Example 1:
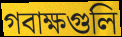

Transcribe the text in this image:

গবাক্ষগুলি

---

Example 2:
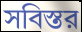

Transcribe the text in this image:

সবিস্তর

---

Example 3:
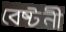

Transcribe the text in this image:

বেষ্টনী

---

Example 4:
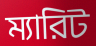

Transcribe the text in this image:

ম্যারিট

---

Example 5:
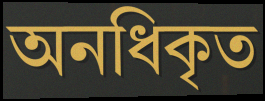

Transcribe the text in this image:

অনধিকৃত